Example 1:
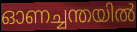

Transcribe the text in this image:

ഓണച്ചന്തയിൽ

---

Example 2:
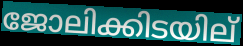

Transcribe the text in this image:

ജോലിക്കിടയില്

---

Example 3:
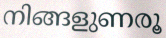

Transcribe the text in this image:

നിങ്ങളുണരൂ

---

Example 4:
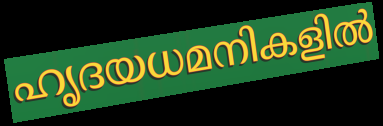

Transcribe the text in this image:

ഹൃദയധമനികളിൽ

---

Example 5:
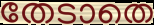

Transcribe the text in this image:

തേടാതെ